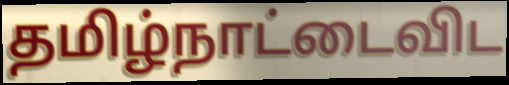
தமிழ்நாட்டைவிட